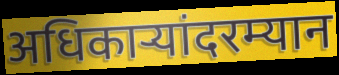
अधिकाऱ्यांदरम्यान